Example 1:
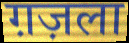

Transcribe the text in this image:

ग़ज़ला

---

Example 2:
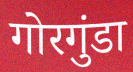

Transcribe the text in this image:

गोरगुंडा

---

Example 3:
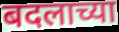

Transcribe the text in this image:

बदलाच्या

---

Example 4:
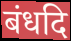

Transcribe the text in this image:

बंधदि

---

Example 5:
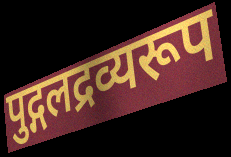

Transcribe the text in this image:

पुद्गलद्रव्यरूप